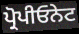
ਪ੍ਰੋਪੀਓਨੇਟ